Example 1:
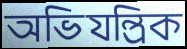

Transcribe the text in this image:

অভিযন্ত্ৰিক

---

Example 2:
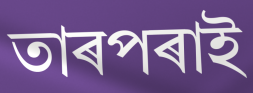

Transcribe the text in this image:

তাৰপৰাই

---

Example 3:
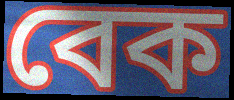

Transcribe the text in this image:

বেক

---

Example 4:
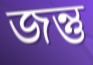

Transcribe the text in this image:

জন্তু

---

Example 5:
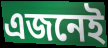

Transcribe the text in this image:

এজনেই